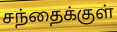
சந்தைக்குள்